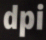
dpi